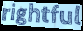
rightful